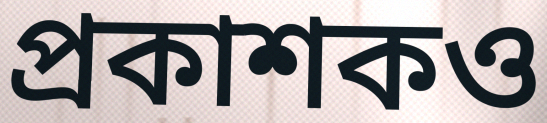
প্রকাশকও